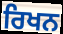
ਰਿਖਨ